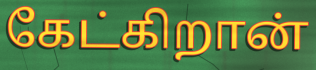
கேட்கிறான்